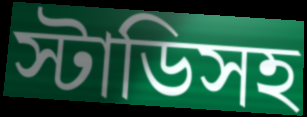
স্টাডিসহ